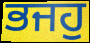
ਭਜਹੁ